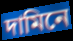
দামিনে